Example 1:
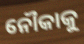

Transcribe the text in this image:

ନୌକାକୁ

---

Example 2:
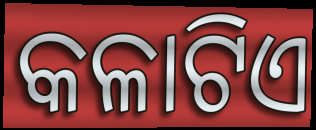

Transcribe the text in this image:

କଳାଟିଏ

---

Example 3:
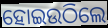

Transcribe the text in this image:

ହୋଇଉଠିଲେ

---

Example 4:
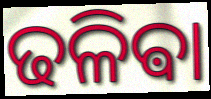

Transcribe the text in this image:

ଢଳିଵା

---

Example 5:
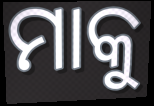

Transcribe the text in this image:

ମାକୁ